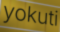
yokuti